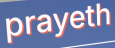
prayeth